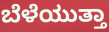
ಬೆಳೆಯುತ್ತಾ